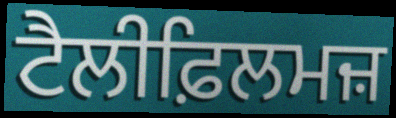
ਟੈਲੀਫ਼ਿਲਮਜ਼